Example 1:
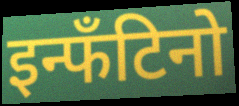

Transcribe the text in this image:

इन्फँटिनो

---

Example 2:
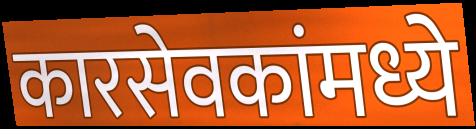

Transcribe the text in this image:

कारसेवकांमध्ये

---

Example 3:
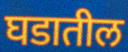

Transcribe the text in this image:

घडातील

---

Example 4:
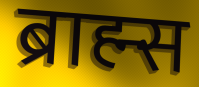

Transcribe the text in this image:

ब्राह्म्स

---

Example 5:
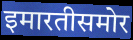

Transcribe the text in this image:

इमारतीसमोर